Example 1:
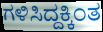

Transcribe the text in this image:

ಗಳಿಸಿದ್ದಕ್ಕಿಂತ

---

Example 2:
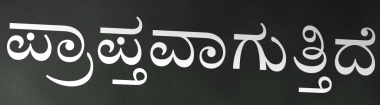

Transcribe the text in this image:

ಪ್ರಾಪ್ತವಾಗುತ್ತಿದೆ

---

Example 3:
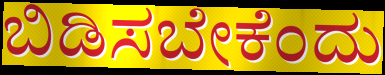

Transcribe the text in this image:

ಬಿಡಿಸಬೇಕೆಂದು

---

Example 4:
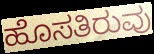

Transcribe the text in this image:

ಹೊಸತಿರುವು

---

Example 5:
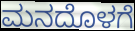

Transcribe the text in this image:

ಮನದೊಳಗೆ